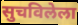
सुचविलेला